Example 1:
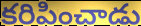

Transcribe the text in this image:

కరిపించాడు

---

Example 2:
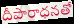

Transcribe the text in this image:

దీపారాధనతో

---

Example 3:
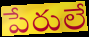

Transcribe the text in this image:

పేరులే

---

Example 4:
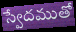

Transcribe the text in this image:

స్వేదముతో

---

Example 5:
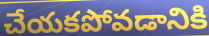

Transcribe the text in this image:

చేయకపోవడానికి